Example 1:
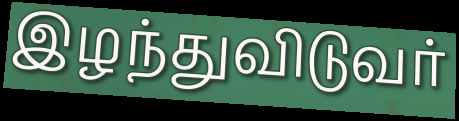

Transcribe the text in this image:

இழந்துவிடுவர்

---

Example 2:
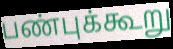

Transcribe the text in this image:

பண்புக்கூறு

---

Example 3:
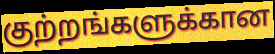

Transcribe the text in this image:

குற்றங்களுக்கான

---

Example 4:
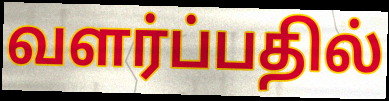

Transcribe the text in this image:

வளர்ப்பதில்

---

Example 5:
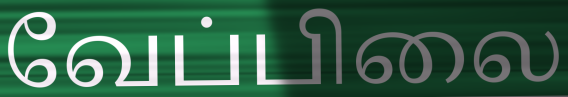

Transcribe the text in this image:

வேப்பிலை